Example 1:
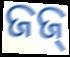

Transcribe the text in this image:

ଜଜ୍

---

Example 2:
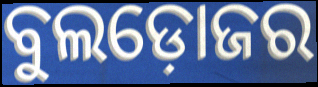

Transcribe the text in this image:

ବୁଲଡ଼ୋଜର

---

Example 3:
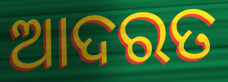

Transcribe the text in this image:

ଆଦରତ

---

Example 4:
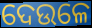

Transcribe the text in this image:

ଦେଉଳେ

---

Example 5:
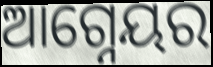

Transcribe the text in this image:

ଆଗ୍ନେୟର